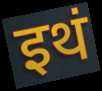
इथं